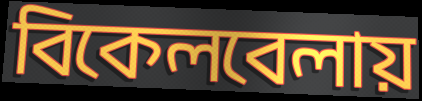
বিকেলবেলায়